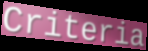
Criteria